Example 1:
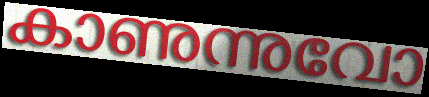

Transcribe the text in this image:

കാണുന്നുവോ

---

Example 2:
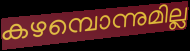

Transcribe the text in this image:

കഴമ്പൊന്നുമില്ല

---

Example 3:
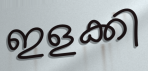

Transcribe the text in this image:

ഇളക്കി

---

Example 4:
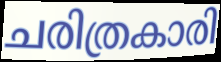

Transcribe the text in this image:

ചരിത്രകാരി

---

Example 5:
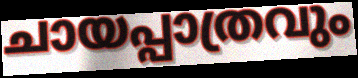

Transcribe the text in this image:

ചായപ്പാത്രവും